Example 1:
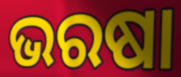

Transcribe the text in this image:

ଭରଷା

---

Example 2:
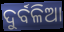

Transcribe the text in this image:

ଦୁର୍ବଳିଆ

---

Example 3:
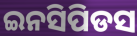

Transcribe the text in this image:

ଇନସିପିଡସ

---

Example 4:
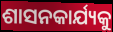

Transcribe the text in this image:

ଶାସନକାର୍ଯ୍ୟକୁ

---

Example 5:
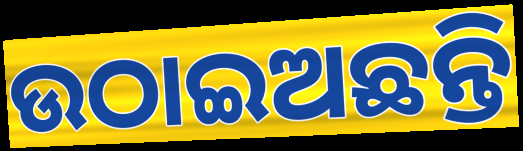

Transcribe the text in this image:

ଉଠାଇଅଛନ୍ତି